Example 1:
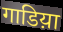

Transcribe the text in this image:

गाडिय़ा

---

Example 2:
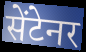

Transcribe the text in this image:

सेंटेनर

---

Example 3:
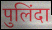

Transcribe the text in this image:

पुलिंदा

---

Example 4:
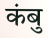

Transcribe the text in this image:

कंबु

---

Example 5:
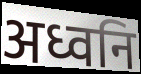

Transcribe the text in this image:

अध्वनि